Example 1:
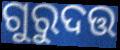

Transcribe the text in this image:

ଗୁରୁଦତ୍ତ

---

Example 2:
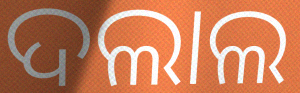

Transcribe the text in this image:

ଦଲାଲ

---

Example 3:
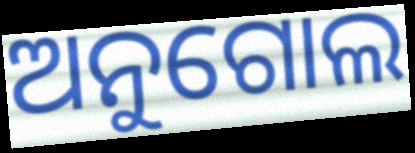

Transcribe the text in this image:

ଅନୁଗୋଲ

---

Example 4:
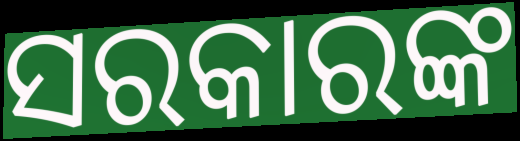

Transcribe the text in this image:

ସରକାରଙ୍କ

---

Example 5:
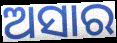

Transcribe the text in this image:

ଅସାର